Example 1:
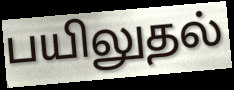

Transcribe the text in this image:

பயிலுதல்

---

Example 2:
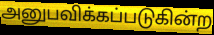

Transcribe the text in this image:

அனுபவிக்கப்படுகின்ற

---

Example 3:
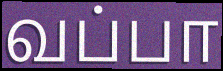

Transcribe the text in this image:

வப்பா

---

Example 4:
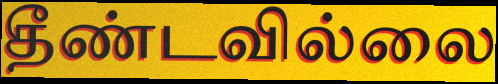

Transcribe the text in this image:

தீண்டவில்லை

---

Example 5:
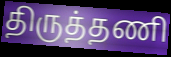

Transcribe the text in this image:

திருத்தணி